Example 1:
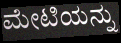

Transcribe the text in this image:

ಮೇಟಿಯನ್ನು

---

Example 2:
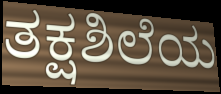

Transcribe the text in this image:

ತಕ್ಷಶಿಲೆಯ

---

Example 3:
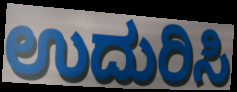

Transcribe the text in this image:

ಉದುರಿಸಿ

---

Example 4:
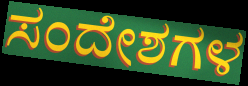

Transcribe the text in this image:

ಸಂದೇಶಗಳ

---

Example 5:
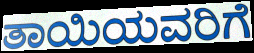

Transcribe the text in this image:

ತಾಯಿಯವರಿಗೆ